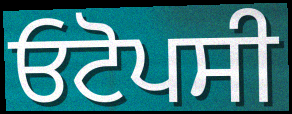
ਓਟੋਪਸੀ